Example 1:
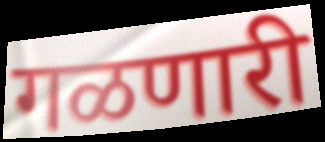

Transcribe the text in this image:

गळणारी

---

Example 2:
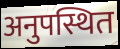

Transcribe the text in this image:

अनुपस्थित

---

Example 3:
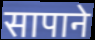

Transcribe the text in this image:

सापाने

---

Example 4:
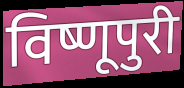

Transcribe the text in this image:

विष्णूपुरी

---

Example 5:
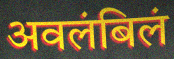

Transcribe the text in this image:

अवलंबिलं